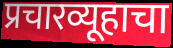
प्रचारव्यूहाचा